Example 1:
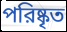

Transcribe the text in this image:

পরিষ্কৃত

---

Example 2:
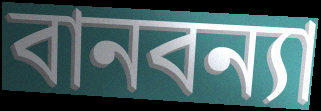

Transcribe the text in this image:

বানবন্যা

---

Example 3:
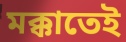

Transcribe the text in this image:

মক্কাতেই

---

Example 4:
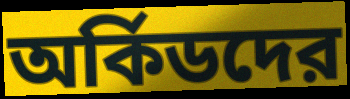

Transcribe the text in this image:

অর্কিডদের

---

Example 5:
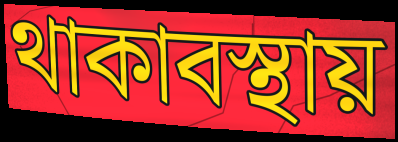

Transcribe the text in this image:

থাকাবস্থায়